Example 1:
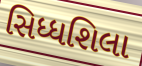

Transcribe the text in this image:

સિધ્ધશિલા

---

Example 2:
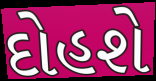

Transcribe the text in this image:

દોહશે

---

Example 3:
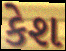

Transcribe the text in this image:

કેશ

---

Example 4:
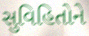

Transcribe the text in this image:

સુવિહિતોને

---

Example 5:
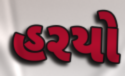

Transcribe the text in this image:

હરયો